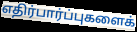
எதிர்பார்ப்புகளைக்